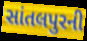
સાંતલપુરની